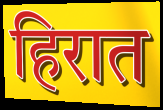
हिरात